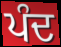
ਪੰਦ